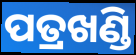
ପତ୍ରଖଣ୍ଡି